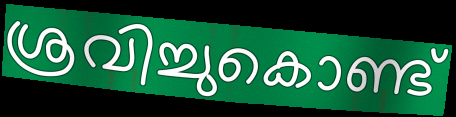
ശ്രവിച്ചുകൊണ്ട്